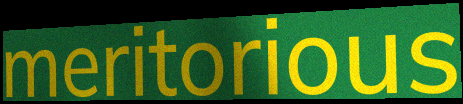
meritorious